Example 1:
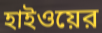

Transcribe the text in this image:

হাইওয়ের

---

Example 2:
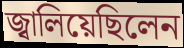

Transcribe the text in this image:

জ্বালিয়েছিলেন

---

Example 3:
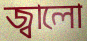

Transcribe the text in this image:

জ্বালো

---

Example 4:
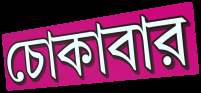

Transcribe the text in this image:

চোকাবার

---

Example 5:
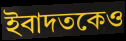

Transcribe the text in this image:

ইবাদতকেও